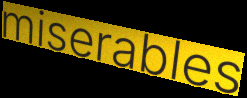
miserables